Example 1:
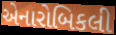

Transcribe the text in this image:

એનારોબિકલી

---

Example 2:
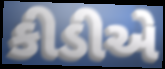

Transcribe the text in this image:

કીડીએ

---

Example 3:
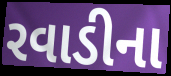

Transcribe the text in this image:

રવાડીના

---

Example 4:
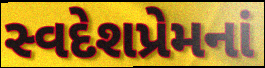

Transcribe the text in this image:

સ્વદેશપ્રેમનાં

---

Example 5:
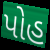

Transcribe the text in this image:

પોહ